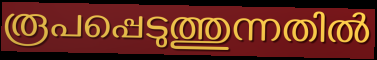
രൂപപ്പെടുത്തുന്നതിൽ